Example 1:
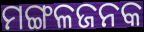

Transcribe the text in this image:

ମଙ୍ଗଳଜନକ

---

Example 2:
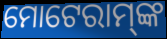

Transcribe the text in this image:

ମୋଟେରାମ୍‌ଙ୍କ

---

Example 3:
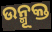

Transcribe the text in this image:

ଉନ୍ମୂକ୍ତ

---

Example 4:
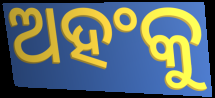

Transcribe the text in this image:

ଅହଂକୁ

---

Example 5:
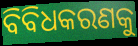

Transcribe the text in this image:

ବିବିଧକରଣକୁ